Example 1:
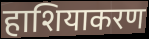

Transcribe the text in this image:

हाशियाकरण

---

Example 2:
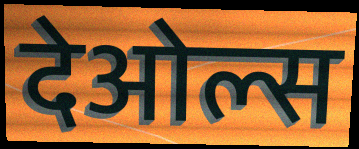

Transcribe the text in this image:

देओल्स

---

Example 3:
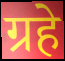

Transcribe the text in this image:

ग्रहे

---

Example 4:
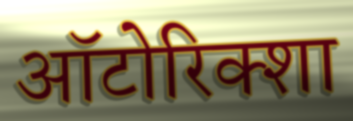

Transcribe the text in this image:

ऑटोरिक्शा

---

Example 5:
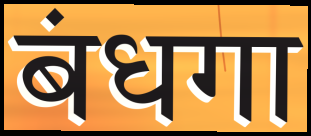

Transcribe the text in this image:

बंधगा